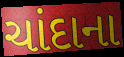
ચાંદાના